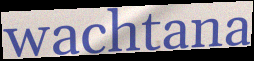
wachtana